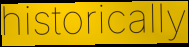
historically